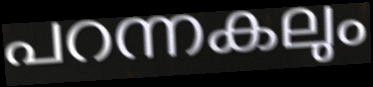
പറന്നകലും